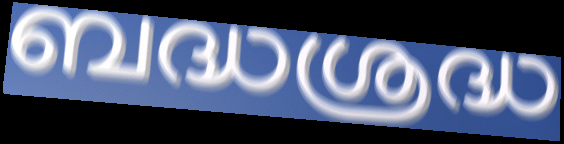
ബദ്ധശ്രദ്ധ